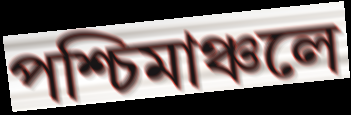
পশ্চিমাঞ্চলে